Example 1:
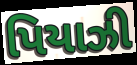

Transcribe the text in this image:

પિયાઝી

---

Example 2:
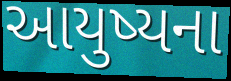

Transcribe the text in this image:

આયુષ્યના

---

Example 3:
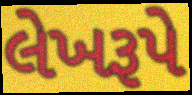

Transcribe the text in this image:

લેખરૂપે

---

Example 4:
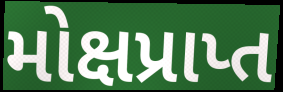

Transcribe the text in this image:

મોક્ષપ્રાપ્ત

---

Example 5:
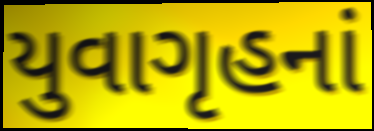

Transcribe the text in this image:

યુવાગૃહનાં